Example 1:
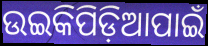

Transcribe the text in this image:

ଉଇକିପିଡ଼ିଆପାଇଁ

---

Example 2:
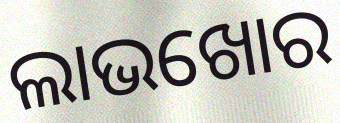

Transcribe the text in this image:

ଲାଭଖୋର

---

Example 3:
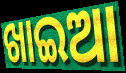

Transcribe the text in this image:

ଖାଇଆ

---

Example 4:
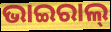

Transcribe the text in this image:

ଭାଇରାଲ୍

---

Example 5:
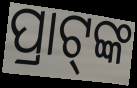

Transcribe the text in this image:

ପ୍ରାଟ୍‍ଙ୍କ